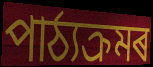
পাঠ্যক্ৰমৰ